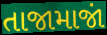
તાજામાજાં